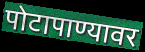
पोटापाण्यावर